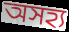
অসহ্য